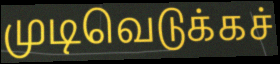
முடிவெடுக்கச்